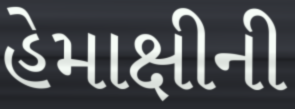
હેમાક્ષીની